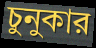
চুনুকার